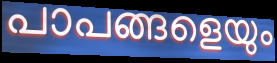
പാപങ്ങളെയും